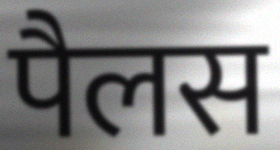
पैलस